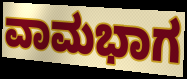
ವಾಮಭಾಗ